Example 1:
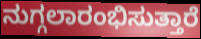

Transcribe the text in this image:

ನುಗ್ಗಲಾರಂಭಿಸುತ್ತಾರೆ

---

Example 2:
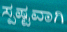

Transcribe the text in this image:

ಸ್ಪಷ್ಟವಾಗಿ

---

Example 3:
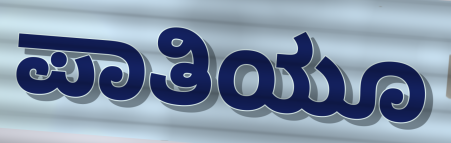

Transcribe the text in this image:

ಪಾತಿಯೂ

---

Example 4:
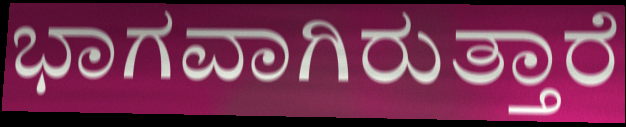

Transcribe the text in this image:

ಭಾಗವಾಗಿರುತ್ತಾರೆ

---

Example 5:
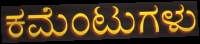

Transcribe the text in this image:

ಕಮೆಂಟುಗಳು